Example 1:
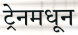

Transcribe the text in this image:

ट्रेनमधून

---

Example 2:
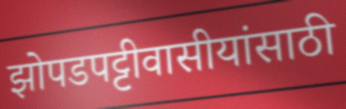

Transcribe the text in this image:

झोपडपट्टीवासीयांसाठी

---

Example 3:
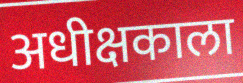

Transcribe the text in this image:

अधीक्षकाला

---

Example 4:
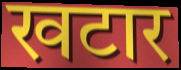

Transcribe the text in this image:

खटार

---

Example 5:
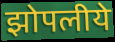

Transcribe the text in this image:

झोपलीये